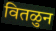
वितळुन